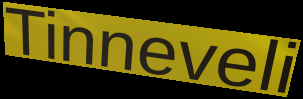
Tinneveli